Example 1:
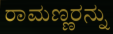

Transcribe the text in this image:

ರಾಮಣ್ಣರನ್ನು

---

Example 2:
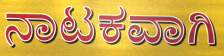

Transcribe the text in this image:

ನಾಟಕವಾಗಿ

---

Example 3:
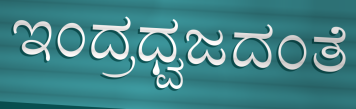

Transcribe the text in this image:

ಇಂದ್ರಧ್ವಜದಂತೆ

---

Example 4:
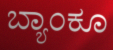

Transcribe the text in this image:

ಬ್ಯಾಂಕೂ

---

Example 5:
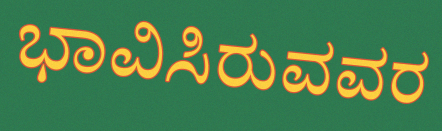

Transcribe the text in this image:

ಭಾವಿಸಿರುವವರ